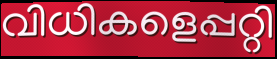
വിധികളെപ്പറ്റി